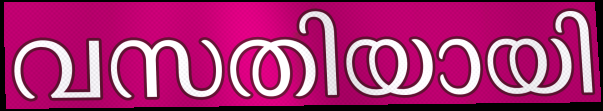
വസതിയായി